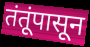
तंतूंपासून